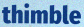
thimble